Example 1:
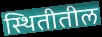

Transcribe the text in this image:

स्थितीतील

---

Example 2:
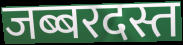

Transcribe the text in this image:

जब्बरदस्त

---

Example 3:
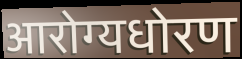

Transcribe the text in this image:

आरोग्यधोरण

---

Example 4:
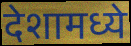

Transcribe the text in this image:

देशामध्ये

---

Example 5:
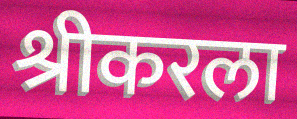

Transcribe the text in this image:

श्रीकरला